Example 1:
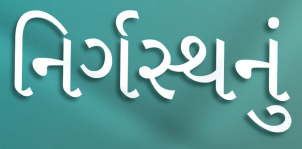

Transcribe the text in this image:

નિર્ગસ્થનું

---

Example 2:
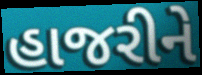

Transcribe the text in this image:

હાજરીને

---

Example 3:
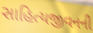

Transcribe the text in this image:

સાહિત્યજીવનની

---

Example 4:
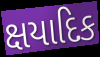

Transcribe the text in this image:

ક્ષયાદિક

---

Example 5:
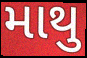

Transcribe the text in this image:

માથુ